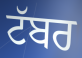
ਟੱਬਰ